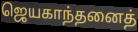
ஜெயகாந்தனைத்